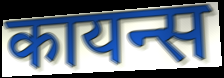
कायन्स